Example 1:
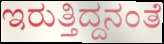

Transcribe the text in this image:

ಇರುತ್ತಿದ್ದನಂತೆ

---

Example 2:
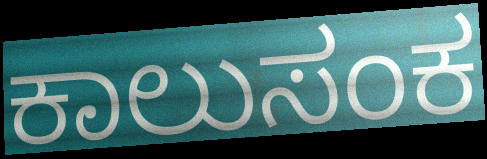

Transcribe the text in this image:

ಕಾಲುಸಂಕ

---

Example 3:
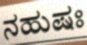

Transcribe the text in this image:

ನಹುಷಃ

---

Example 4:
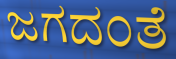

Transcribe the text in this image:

ಜಗದಂತೆ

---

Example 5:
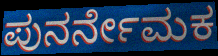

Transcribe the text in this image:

ಪುನರ್ನೇಮಕ